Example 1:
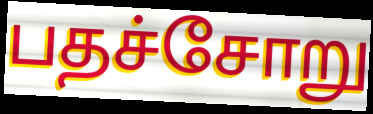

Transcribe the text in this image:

பதச்சோறு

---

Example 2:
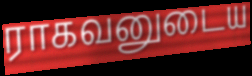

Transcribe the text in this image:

ராகவனுடைய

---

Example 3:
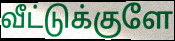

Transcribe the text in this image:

வீட்டுக்குளே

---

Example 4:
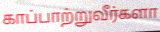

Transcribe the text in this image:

காப்பாற்றுவீர்களா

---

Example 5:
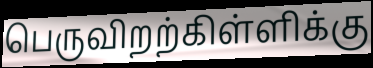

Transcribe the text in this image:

பெருவிறற்கிள்ளிக்கு